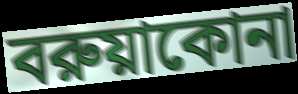
বরুয়াকোনা